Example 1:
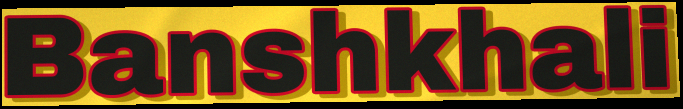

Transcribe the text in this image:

Banshkhali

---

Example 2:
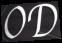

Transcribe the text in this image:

OD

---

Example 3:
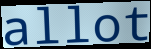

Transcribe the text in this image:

allot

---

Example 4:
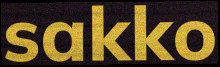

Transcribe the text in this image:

sakko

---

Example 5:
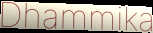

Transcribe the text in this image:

Dhammika